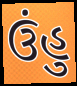
ઉંહુ